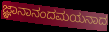
ಜ್ಞಾನಾನಂದಮಯನಾದ